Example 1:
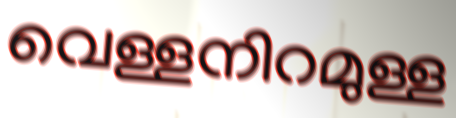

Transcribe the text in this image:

വെള്ളനിറമുള്ള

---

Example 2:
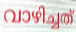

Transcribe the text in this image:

വാഴിച്ചത്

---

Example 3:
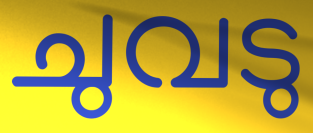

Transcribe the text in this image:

ചുവടു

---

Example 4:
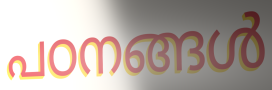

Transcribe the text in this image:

പഠനങ്ങൾ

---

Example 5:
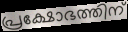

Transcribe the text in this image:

പ്രക്ഷോഭത്തിന്